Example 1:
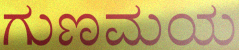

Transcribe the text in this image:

ಗುಣಮಯ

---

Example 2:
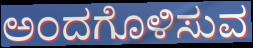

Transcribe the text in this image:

ಅಂದಗೊಳಿಸುವ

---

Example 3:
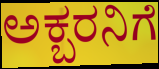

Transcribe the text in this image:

ಅಕ್ಬರನಿಗೆ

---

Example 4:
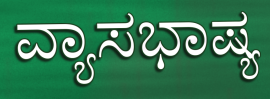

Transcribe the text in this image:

ವ್ಯಾಸಭಾಷ್ಯ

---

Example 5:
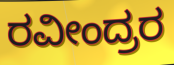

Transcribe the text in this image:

ರವೀಂದ್ರರ